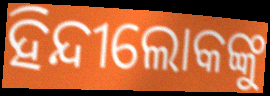
ହିନ୍ଦୀଲୋକଙ୍କୁ